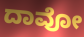
ದಾವೋ